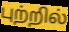
புற்றில்